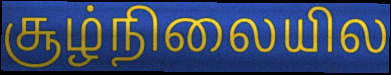
சூழ்நிலையில